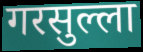
गरसुल्ला